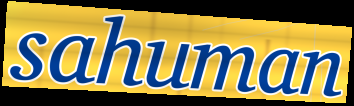
sahuman